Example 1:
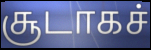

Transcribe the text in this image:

சூடாகச்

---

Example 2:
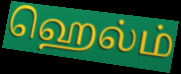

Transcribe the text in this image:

ஹெல்ம்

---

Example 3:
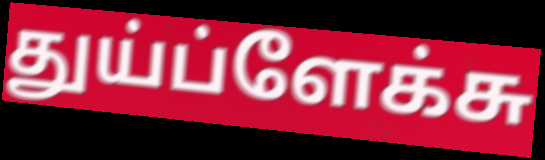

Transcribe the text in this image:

துய்ப்ளேக்சு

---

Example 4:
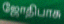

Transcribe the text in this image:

ஜோதிபாசு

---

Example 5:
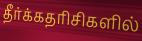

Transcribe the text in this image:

தீர்க்கதரிசிகளில்